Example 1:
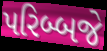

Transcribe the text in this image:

પરિબ્બજે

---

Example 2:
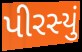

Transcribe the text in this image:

પીરસ્યું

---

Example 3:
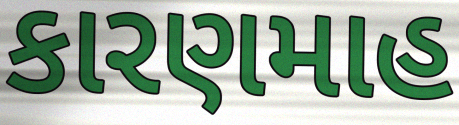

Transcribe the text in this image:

કારણમાહ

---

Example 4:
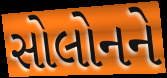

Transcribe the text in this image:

સોલોનને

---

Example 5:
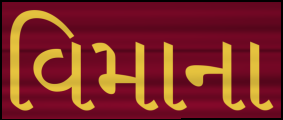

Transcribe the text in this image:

વિમાના